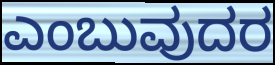
ಎಂಬುವುದರ